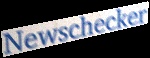
Newschecker